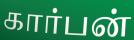
கார்பன்